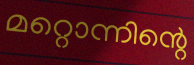
മറ്റൊന്നിന്റെ